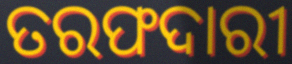
ତରଫଦାରୀ